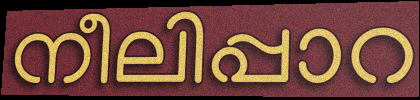
നീലിപ്പാറ